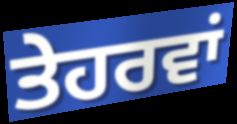
ਤੇਹਰਵਾਂ